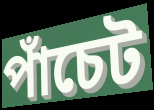
পাঁচেট